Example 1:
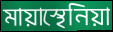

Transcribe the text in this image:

মায়াস্থেনিয়া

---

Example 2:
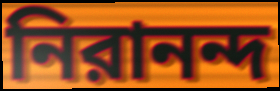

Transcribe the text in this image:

নিরানন্দ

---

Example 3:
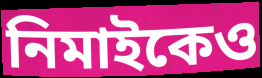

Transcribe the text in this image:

নিমাইকেও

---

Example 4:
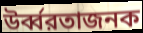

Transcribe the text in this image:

উর্ব্বরতাজনক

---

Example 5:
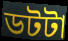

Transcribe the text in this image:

ডটটা